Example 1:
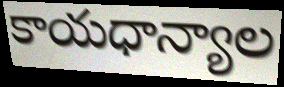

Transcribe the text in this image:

కాయధాన్యాల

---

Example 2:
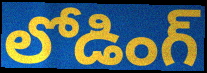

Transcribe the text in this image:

లోడింగ్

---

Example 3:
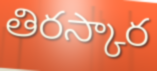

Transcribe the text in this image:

తిరస్కార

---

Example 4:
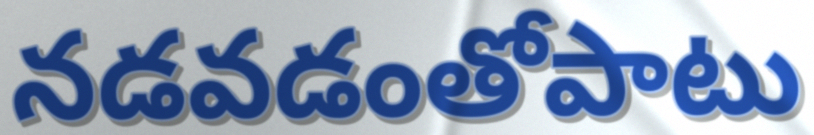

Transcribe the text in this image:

నడవడంతోపాటు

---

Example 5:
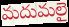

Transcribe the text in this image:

మదుమలై